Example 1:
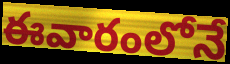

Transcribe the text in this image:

ఈవారంలోనే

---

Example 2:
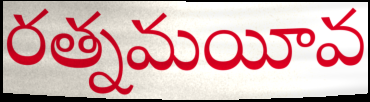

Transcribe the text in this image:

రత్నమయీవ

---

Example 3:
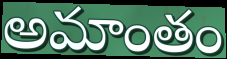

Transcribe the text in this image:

అమాంతం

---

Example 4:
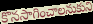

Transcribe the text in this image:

కొనసాగించాలనుకుని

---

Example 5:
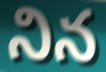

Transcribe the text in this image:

నిన